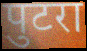
पुटरा